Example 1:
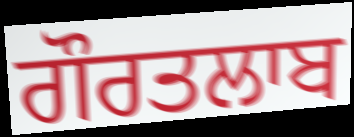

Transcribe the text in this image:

ਗੌਰਤਲਾਬ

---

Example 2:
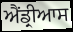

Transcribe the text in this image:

ਐਂਡ੍ਰੀਆਸ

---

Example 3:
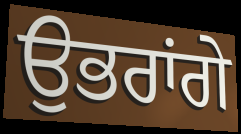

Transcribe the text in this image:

ਉਭਰਾਂਗੇ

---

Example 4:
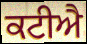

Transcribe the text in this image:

ਕਟੀਐ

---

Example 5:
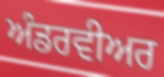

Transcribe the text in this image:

ਅੰਡਰਵੀਅਰ